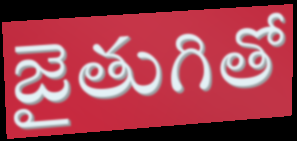
జైతుగితో